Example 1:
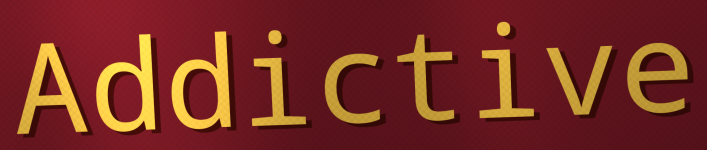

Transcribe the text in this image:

Addictive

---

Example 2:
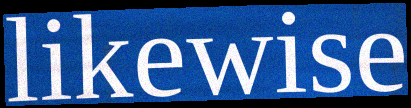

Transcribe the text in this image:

likewise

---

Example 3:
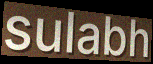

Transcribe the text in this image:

sulabh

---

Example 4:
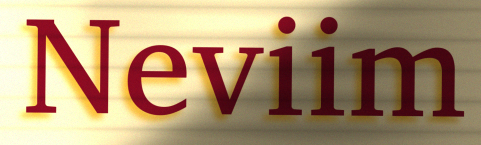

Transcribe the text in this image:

Neviim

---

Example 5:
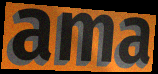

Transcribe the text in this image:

ama